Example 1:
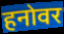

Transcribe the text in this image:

हनोवर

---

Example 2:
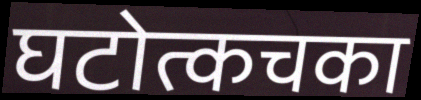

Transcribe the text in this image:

घटोत्कचका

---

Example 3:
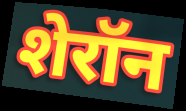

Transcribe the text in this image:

शेरॉन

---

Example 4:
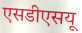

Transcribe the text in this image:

एसडीएसयू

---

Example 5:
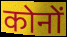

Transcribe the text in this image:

कोनों